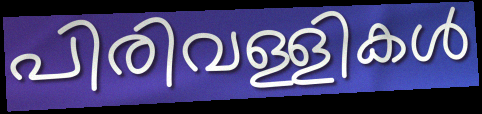
പിരിവള്ളികൾ